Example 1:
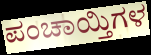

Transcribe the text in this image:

ಪಂಚಾಯ್ತಿಗಳ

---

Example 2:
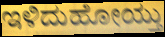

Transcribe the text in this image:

ಇಳಿದುಹೋಯ್ತು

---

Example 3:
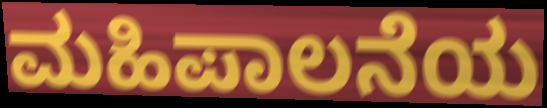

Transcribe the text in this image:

ಮಹಿಪಾಲನೆಯ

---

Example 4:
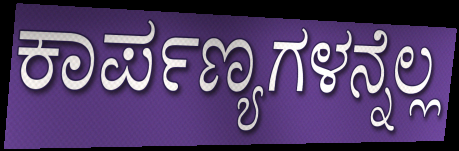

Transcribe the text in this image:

ಕಾರ್ಪಣ್ಯಗಳನ್ನೆಲ್ಲ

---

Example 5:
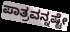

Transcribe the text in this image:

ಪಾತ್ರವನ್ನಷ್ಟೇ